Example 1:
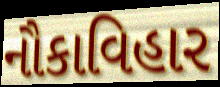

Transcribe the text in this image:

નૌકાવિહાર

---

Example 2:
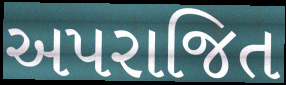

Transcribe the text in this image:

અપરાજિત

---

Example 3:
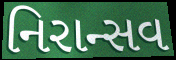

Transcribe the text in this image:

નિરાન્સવ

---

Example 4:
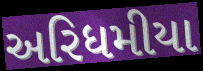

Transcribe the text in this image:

અરિધમીયા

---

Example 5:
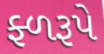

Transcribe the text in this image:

ફ્ળરૂપે